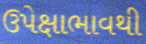
ઉપેક્ષાભાવથી